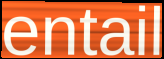
entail